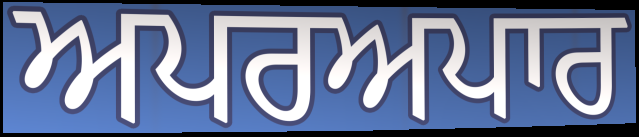
ਅਪਰਅਪਾਰ